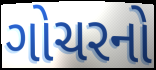
ગોચરનો